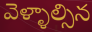
వెళ్ళాల్సిన